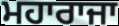
ਮਹਾਰਾਜਾ